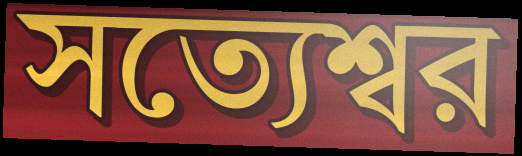
সত্যেশ্বর